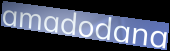
amadodana